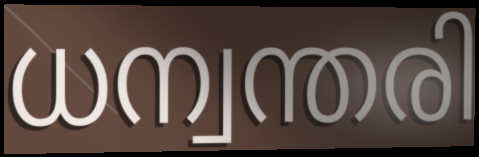
ധന്വന്തരി